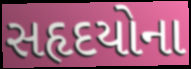
સહૃદયોના